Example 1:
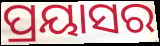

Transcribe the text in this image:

ପ୍ରୟାସର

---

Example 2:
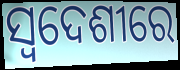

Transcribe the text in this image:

ସ୍ୱଦେଶୀରେ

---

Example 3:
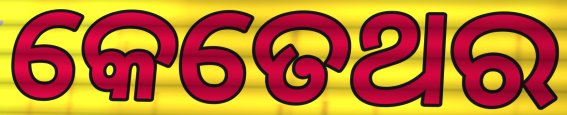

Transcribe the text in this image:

କେତେଥର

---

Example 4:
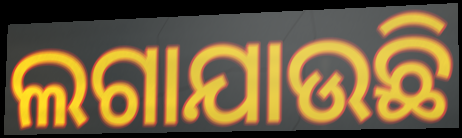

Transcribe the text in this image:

ଲଗାଯାଉଛି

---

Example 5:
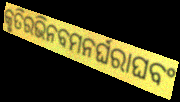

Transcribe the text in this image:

କୃତିରଭିନବମନର୍ଘରାଘବଂ